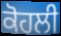
ਕੋਹਲੀ